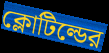
ক্লোটিল্ডের